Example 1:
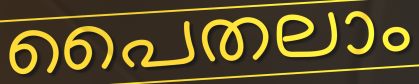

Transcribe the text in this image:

പൈതലാം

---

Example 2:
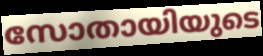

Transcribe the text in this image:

സോതായിയുടെ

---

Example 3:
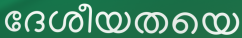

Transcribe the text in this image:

ദേശീയതയെ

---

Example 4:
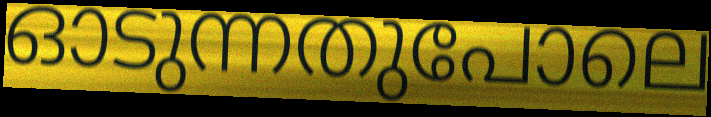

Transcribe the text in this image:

ഓടുന്നതുപോലെ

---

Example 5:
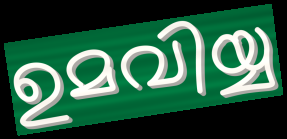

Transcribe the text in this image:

ഉമവിയ്യ